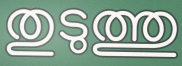
തുടുത്തു